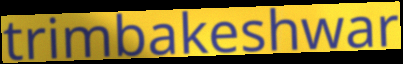
trimbakeshwar